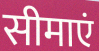
सीमाएं